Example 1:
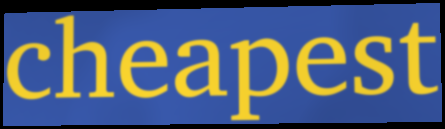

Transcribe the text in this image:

cheapest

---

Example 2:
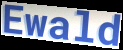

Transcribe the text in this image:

Ewald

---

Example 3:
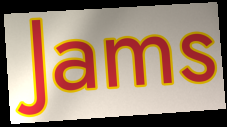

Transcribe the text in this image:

Jams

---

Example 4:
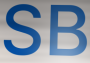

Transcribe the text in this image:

SB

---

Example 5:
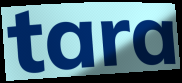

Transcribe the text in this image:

tara